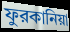
ফুরকানিয়া